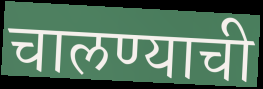
चालण्याची